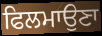
ਫਿਲਮਾਉਣਾ